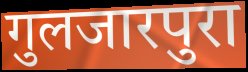
गुलजारपुरा